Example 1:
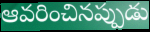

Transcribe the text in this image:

ఆవరించినప్పుడు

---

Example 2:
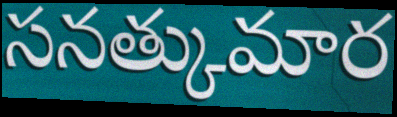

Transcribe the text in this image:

సనత్కుమార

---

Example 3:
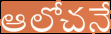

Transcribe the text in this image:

ఆలోచనే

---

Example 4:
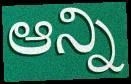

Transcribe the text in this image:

ఆన్ని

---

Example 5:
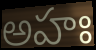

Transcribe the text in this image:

అహః